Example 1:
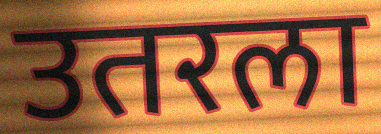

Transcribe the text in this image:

उतरला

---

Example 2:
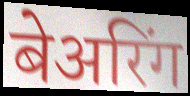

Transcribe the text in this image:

बेअरिंग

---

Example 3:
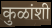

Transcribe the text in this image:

कुळांशी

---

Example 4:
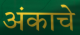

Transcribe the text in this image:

अंकाचे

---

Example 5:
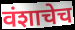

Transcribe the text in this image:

वंशाचेच